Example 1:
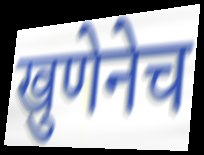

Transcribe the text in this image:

खुणेनेच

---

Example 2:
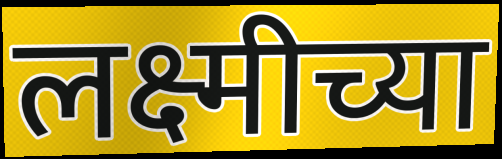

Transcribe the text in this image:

लक्ष्मीच्या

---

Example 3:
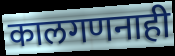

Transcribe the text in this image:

कालगणनाही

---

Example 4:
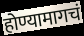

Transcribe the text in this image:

होण्यामागचं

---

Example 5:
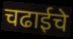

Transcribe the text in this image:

चढाईचे